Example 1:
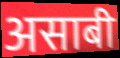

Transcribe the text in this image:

असाबी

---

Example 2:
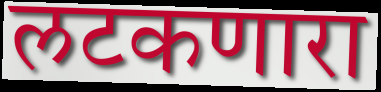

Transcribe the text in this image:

लटकणारा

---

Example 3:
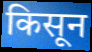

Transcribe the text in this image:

किसून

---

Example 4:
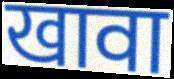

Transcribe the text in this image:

खावा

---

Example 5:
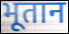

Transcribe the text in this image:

भूतान